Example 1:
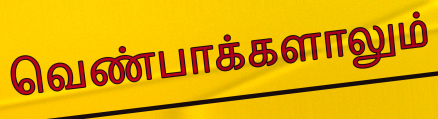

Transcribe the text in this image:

வெண்பாக்களாலும்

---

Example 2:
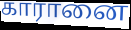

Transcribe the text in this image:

காரானை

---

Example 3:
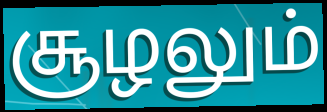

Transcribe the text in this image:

சூழலும்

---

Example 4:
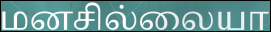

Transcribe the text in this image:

மனசில்லையா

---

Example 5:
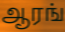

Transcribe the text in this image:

ஆரங்